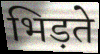
भिड़ते